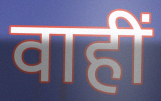
वाहीं